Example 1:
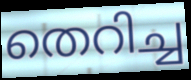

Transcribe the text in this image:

തെറിച്ച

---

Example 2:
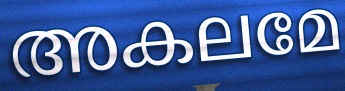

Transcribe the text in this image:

അകലമേ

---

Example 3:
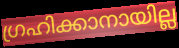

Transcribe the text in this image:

ഗ്രഹിക്കാനായില്ല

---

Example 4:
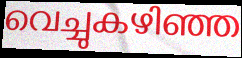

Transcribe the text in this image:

വെച്ചുകഴിഞ്ഞ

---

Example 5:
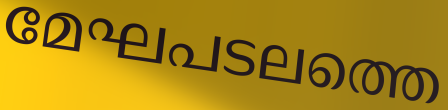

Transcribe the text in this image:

മേഘപടലത്തെ